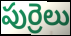
పుర్రెలు